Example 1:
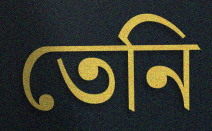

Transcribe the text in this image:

তেনি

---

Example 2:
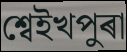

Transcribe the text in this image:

শ্বেইখপুৰা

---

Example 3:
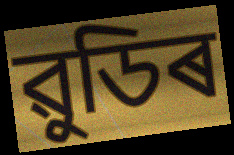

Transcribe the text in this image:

ৱুডিৰ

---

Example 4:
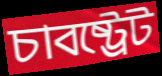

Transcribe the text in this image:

চাবষ্ট্ৰেট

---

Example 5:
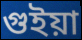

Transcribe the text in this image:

গুইয়া